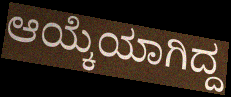
ಆಯ್ಕೆಯಾಗಿದ್ದ